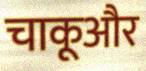
चाकूऔर